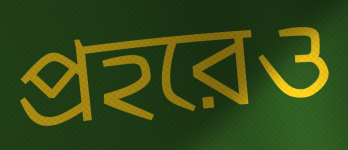
প্রহরেও